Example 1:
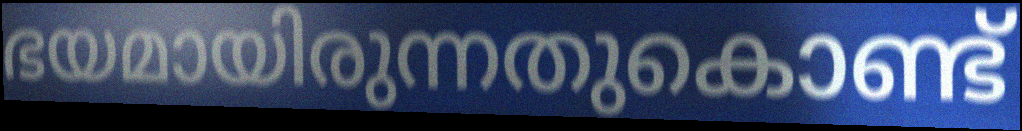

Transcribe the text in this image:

ഭയമായിരുന്നതുകൊണ്ട്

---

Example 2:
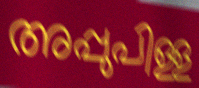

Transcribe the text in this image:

അപ്പുപിള്ള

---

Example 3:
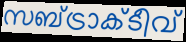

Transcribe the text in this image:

സബ്ട്രാക്ടീവ്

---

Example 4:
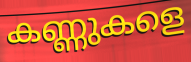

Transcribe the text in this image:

കണ്ണുകളെ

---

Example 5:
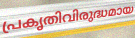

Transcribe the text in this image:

പ്രകൃതിവിരുദ്ധമായ